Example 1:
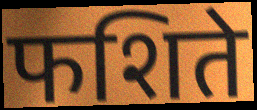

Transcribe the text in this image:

फशिते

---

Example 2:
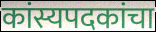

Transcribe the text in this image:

कांस्यपदकांचा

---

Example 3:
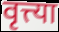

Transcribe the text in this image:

वृत्त्या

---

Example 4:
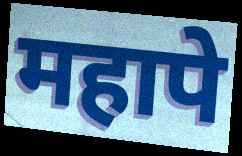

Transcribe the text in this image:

महापे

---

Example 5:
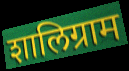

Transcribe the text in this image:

शालिग्राम